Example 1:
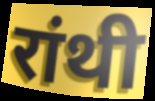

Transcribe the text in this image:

रांथी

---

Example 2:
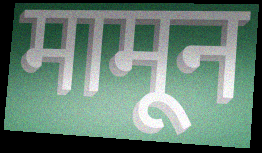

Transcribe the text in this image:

मामून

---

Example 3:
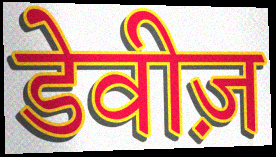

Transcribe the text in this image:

डेवीज़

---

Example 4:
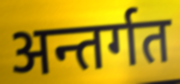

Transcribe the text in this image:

अन्तर्गत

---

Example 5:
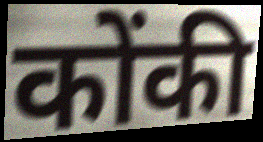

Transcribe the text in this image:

कोंकी